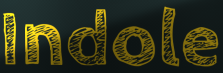
Indole